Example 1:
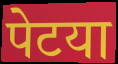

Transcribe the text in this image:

पेटया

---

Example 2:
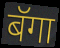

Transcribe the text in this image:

बॅगा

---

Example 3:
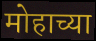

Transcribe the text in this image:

मोहाच्या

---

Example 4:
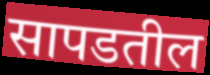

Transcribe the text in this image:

सापडतील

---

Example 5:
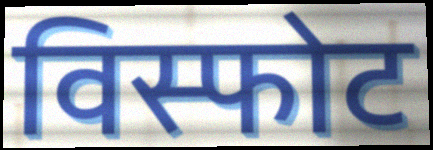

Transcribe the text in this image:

विस्फोट